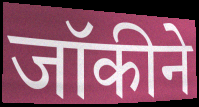
जॉकीने